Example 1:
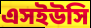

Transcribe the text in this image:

এসইউসি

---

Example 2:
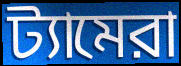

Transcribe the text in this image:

ট্যামেরা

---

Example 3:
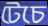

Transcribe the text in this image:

টেচে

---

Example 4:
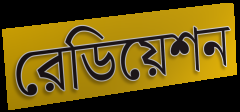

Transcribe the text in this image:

রেডিয়েশন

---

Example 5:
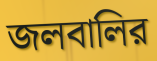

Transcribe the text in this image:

জলবালির